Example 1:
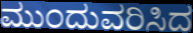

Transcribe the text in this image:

ಮುಂದುವರಿಸಿದ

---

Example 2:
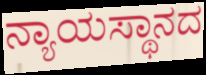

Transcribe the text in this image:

ನ್ಯಾಯಸ್ಥಾನದ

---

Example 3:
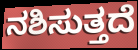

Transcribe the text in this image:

ನಶಿಸುತ್ತದೆ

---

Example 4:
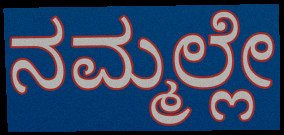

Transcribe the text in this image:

ನಮ್ಮಲ್ಲೇ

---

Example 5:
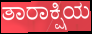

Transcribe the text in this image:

ತಾರಾಕ್ಷಿಯ